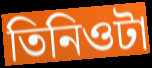
তিনিওটা